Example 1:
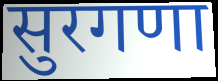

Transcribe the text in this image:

सुरगणा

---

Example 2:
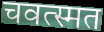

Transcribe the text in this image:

चवत्स्मत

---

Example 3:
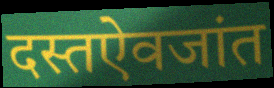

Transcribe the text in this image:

दस्तऐवजांत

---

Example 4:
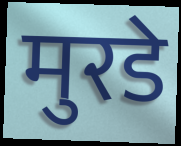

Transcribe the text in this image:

मुरडे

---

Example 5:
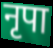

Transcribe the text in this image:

नृपा